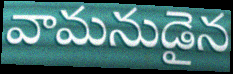
వామనుడైన